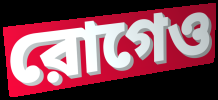
রোগেও